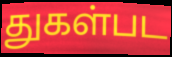
துகள்பட